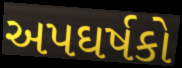
અપઘર્ષકો